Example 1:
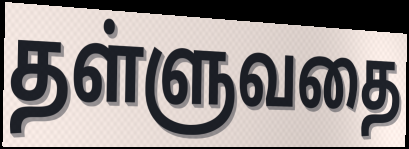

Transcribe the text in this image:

தள்ளுவதை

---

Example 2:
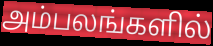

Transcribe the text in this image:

அம்பலங்களில்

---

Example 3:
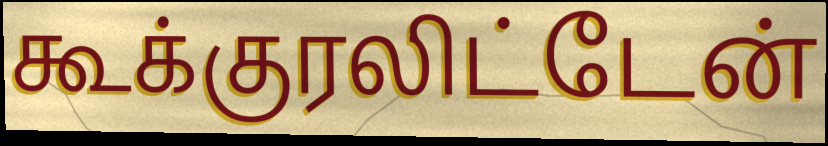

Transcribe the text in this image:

கூக்குரலிட்டேன்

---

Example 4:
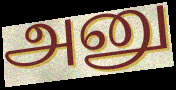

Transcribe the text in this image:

அனு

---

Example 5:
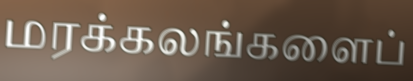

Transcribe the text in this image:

மரக்கலங்களைப்